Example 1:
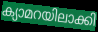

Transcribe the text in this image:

ക്യാമറയിലാക്കി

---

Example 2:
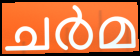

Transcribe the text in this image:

ചർമ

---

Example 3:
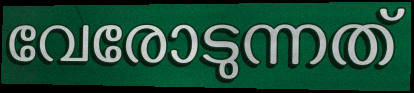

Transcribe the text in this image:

വേരോടുന്നത്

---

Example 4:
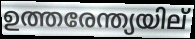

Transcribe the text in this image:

ഉത്തരേന്ത്യയില്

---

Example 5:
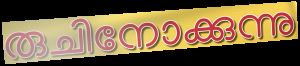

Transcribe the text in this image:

രുചിനോക്കുന്നു